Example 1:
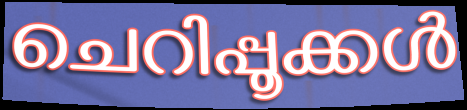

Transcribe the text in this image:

ചെറിപ്പൂക്കൾ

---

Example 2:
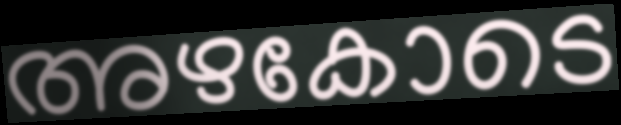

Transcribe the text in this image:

അഴകോടെ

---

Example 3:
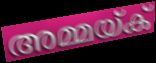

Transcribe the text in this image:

അമ്മയ്ക്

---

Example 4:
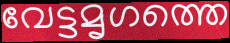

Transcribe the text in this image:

വേട്ടമൃഗത്തെ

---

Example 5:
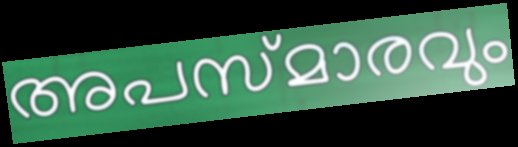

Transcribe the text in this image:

അപസ്മാരവും